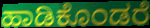
ಹಾಡಿಕೊಂಡರೆ